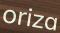
oriza